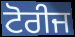
ਟੋਰੀਜ